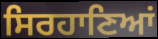
ਸਿਰਹਾਣਿਆਂ